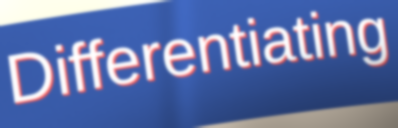
Differentiating